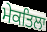
ਮੇਕਤਿਲਾ